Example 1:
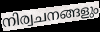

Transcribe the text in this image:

നിര്വചനങ്ങളും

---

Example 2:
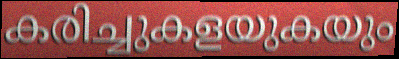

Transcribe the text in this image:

കരിച്ചുകളയുകയും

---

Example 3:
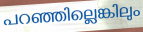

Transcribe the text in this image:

പറഞ്ഞില്ലെങ്കിലും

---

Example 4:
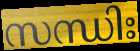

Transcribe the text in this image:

സന്ധിഃ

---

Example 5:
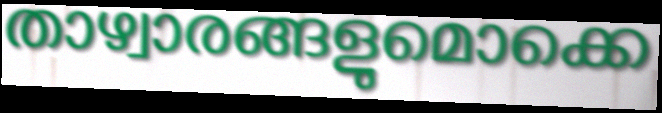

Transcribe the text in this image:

താഴ്വാരങ്ങളുമൊക്കെ